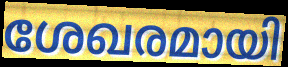
ശേഖരമായി